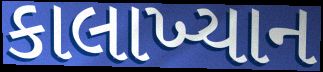
કાલાખ્યાન